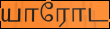
யாரோட